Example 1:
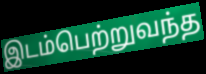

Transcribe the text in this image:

இடம்பெற்றுவந்த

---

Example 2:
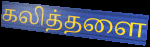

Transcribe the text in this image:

கலித்தளை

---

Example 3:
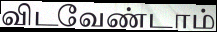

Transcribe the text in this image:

விடவேண்டாம்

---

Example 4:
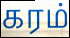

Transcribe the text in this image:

கரம்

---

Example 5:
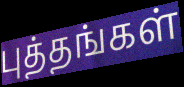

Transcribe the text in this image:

புத்தங்கள்